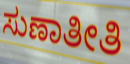
ಸುಣಾತೀತಿ